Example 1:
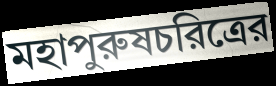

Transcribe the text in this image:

মহাপুরুষচরিত্রের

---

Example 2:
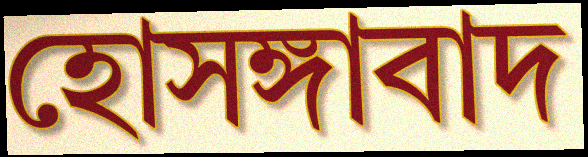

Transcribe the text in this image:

হোসঙ্গাবাদ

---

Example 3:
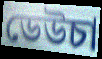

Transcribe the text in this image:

ডেউচা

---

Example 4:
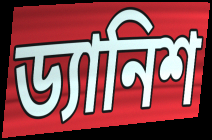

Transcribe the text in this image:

ড্যানিশ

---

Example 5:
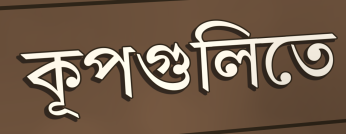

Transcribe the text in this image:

কূপগুলিতে